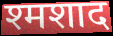
श्मशाद